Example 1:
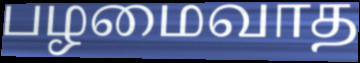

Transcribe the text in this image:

பழமைவாத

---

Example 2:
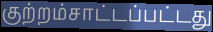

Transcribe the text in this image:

குற்றம்சாட்டப்பட்டது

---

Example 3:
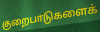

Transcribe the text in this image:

குறைபாடுகளைக்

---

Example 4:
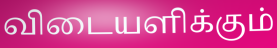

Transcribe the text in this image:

விடையளிக்கும்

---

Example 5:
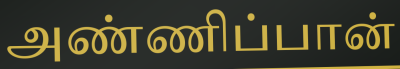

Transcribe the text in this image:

அண்ணிப்பான்